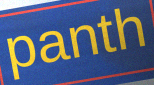
panth